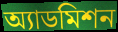
অ্যাডমিশন